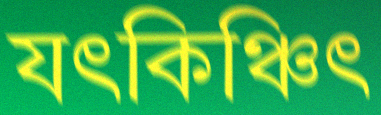
যৎকিঞ্চিৎ